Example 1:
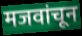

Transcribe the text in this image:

मजवांचून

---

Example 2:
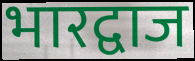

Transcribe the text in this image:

भारद्वाज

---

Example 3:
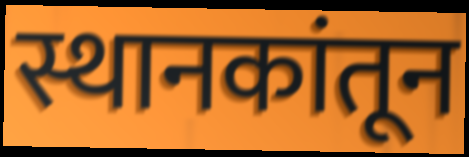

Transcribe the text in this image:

स्थानकांतून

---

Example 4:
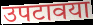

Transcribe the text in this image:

उपटावया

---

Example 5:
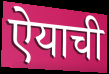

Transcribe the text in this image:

ऐयाची